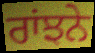
ਰਾਂਝਨੇ